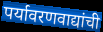
पर्यावरणवाद्यांची